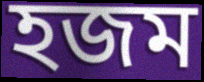
হজম